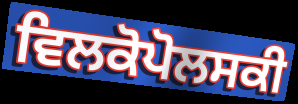
ਵਿਲਕੋਪੋਲਸਕੀ